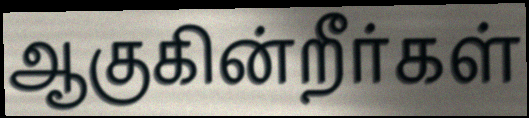
ஆகுகின்றீர்கள்